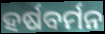
ହର୍ଷବର୍ମନ